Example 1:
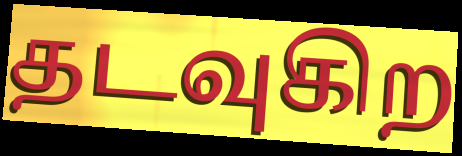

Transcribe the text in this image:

தடவுகிற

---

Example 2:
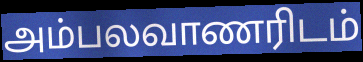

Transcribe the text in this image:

அம்பலவாணரிடம்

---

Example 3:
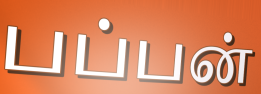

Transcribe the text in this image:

பப்பன்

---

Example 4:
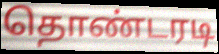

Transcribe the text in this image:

தொண்டரடி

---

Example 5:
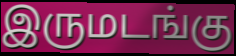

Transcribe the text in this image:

இருமடங்கு